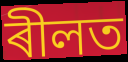
ৰীলত